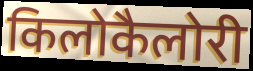
किलोकैलोरी